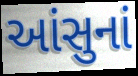
આંસુનાં